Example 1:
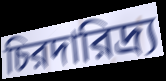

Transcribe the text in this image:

চিরদারিদ্র্য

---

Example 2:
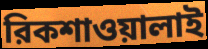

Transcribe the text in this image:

রিকশাওয়ালাই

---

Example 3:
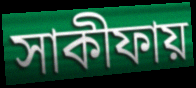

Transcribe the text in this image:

সাকীফায়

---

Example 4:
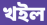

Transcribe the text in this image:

খইল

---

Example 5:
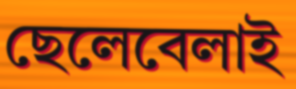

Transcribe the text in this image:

ছেলেবেলাই